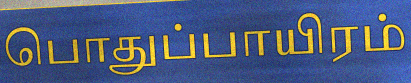
பொதுப்பாயிரம்